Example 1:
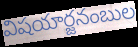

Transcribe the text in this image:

విషయార్జనంబుల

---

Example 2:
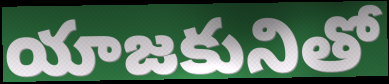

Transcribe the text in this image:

యాజకునితో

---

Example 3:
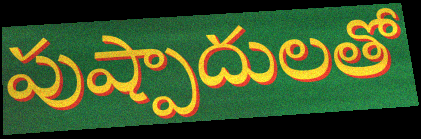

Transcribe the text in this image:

పుష్పాదులతో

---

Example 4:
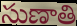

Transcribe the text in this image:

సుణాతి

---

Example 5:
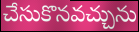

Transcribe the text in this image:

చేసుకొనవచ్చును